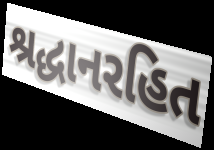
શ્રદ્ધાનરહિત